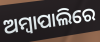
ଅମ୍ବାପାଲିରେ